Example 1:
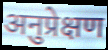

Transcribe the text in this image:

अनुप्रेक्षण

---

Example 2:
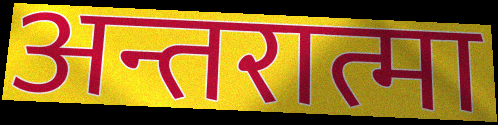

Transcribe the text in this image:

अन्तरात्मा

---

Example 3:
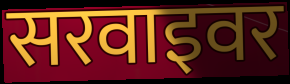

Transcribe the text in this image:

सरवाइवर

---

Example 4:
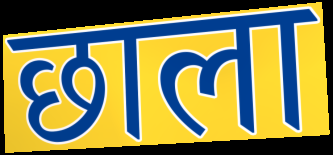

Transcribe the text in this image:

छाला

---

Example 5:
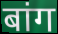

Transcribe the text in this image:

बांग